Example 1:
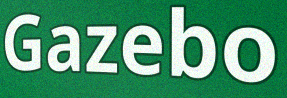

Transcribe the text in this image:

Gazebo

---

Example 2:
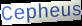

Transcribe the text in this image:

Cepheus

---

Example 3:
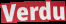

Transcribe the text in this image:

Verdu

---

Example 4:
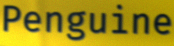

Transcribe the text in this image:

Penguine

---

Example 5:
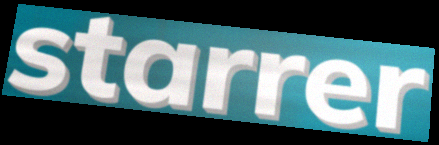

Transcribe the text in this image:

starrer